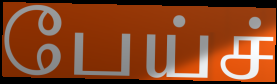
பேய்ச்